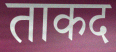
ताकद